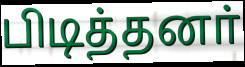
பிடித்தனர்